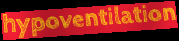
hypoventilation